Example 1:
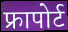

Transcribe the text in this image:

फ्रापोर्ट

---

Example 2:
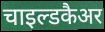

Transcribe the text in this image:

चाइल्डकैअर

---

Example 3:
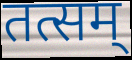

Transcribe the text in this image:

तत्सम्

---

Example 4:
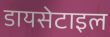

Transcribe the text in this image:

डायसेटाइल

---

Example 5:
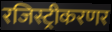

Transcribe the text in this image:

रजिस्ट्रीकरणर